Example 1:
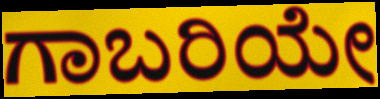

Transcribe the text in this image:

ಗಾಬರಿಯೇ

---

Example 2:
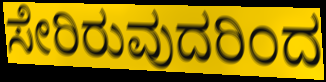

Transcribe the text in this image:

ಸೇರಿರುವುದರಿಂದ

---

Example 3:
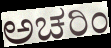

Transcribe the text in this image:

ಅಚರಿಂ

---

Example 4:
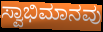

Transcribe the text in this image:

ಸ್ವಾಭಿಮಾನವು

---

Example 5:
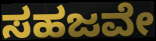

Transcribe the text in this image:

ಸಹಜವೇ